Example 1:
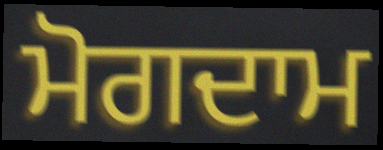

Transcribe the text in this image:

ਮੋਗਦਾਮ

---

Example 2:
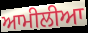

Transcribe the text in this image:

ਆਮੀਲੀਆ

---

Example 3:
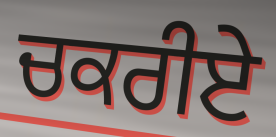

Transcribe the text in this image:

ਚਕਰੀਏ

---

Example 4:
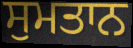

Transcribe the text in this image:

ਸੁਮਤਾਨ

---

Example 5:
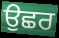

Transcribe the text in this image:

ਉਛਰ